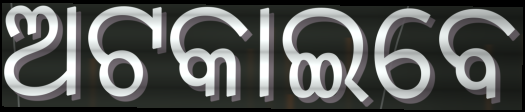
ଅଟକାଇବେ